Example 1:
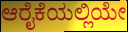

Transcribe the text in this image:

ಆರೈಕೆಯಲ್ಲಿಯೇ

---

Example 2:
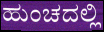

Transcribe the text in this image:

ಹುಂಚದಲ್ಲಿ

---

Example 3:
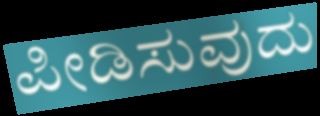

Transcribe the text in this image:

ಪೀಡಿಸುವುದು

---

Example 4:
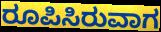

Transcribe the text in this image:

ರೂಪಿಸಿರುವಾಗ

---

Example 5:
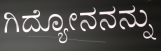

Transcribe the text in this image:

ಗಿದ್ಯೋನನನ್ನು